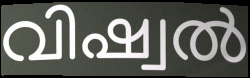
വിഷ്വൽ